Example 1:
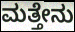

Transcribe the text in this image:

ಮತ್ತೇನು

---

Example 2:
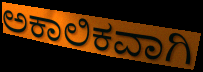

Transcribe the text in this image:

ಅಕಾಲಿಕವಾಗಿ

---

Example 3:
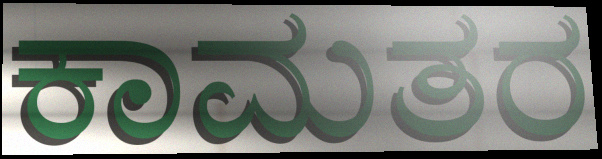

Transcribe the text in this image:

ಕಾಮತರ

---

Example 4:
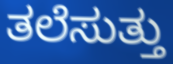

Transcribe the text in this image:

ತಲೆಸುತ್ತು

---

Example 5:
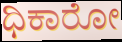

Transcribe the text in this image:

ಧಿಕಾರೋ